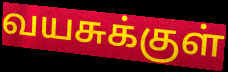
வயசுக்குள்